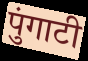
पुंगाटी